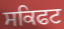
ਸਕਿਫਟ